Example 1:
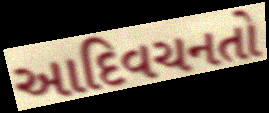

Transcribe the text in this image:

આદિવચનતો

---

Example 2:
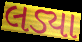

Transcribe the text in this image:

લડ્યા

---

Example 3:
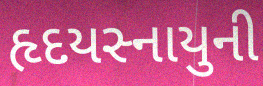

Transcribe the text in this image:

હૃદયસ્નાયુની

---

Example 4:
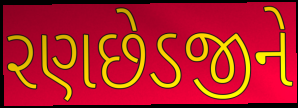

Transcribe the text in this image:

રણછેડજીને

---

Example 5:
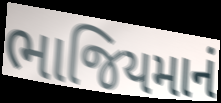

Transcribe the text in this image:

ભાજિયમાનં